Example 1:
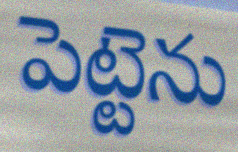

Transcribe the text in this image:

పెట్టెను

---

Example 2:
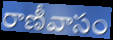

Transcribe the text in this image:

రాణీవాసం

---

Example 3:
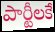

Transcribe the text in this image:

పార్టీలకే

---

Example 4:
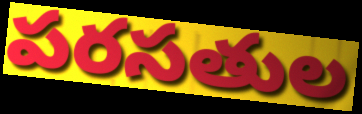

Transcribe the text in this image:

పరసతుల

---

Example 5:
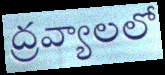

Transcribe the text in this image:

ద్రవ్యాలలో